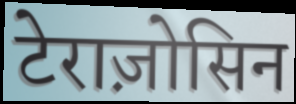
टेराज़ोसिन